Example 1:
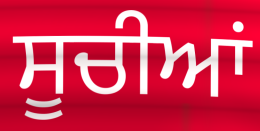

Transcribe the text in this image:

ਸੂਚੀਆਂ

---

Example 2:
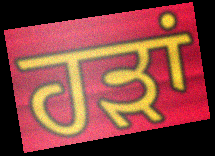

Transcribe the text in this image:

ਹੜਾਂ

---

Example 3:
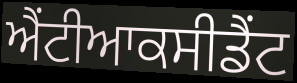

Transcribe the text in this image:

ਐਂਟੀਆਕਸੀਡੈਂਟ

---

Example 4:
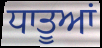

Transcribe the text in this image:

ਧਾਤੂਆਂ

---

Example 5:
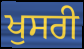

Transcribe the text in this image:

ਖੁਸਰੀ